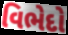
વિભેદો